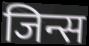
जिन्‍स